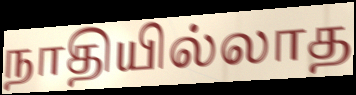
நாதியில்லாத